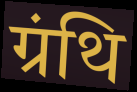
ग्रंथि